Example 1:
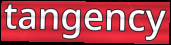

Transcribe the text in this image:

tangency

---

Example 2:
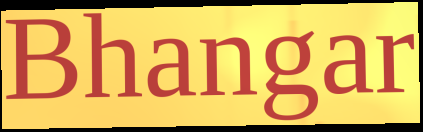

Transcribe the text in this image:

Bhangar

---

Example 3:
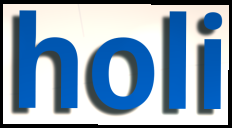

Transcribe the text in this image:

holi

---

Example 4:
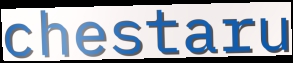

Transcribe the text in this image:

chestaru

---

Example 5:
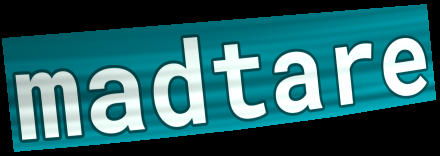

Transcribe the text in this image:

madtare